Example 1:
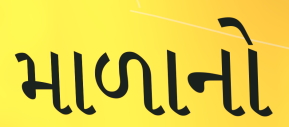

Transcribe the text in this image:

માળાનો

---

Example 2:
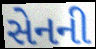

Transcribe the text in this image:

સેનની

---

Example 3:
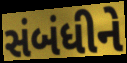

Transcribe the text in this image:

સંબંધીને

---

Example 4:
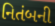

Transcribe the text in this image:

નિતંબની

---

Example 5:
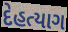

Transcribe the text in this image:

દેહત્યાગ